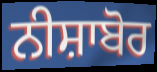
ਨੀਸ਼ਾਬੋਰ